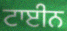
ਟਾਈਨ